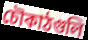
চৌকাঠগুলি